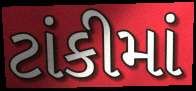
ટાંકીમાં